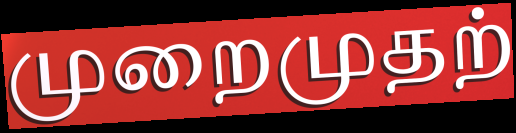
முறைமுதற்